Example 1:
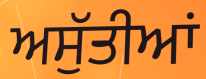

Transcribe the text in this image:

ਅਸੁੱਤੀਆਂ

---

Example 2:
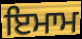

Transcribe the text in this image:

ਇਮਾਮ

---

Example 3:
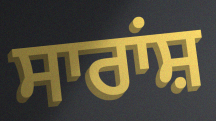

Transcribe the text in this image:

ਸਾਰਾਂਸ਼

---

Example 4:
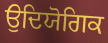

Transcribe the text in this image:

ਉਦਿਯੋਗਿਕ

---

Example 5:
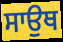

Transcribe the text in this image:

ਸਾਉਥ